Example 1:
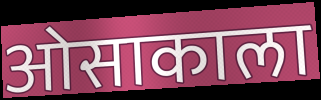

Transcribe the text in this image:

ओसाकाला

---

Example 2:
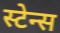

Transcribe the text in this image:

स्टेन्स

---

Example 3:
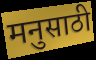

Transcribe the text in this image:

मनुसाठी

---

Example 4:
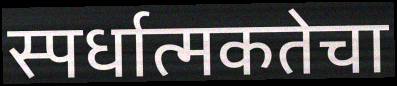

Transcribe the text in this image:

स्पर्धात्मकतेचा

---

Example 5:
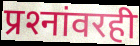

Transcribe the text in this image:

प्रश्नांवरही